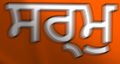
ਸਰ੍ਮੁ